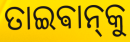
ତାଇଵାନ୍‌କୁ